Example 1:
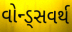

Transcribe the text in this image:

વોન્ડ્સવર્થ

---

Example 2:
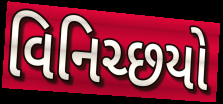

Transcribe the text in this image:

વિનિચ્છયો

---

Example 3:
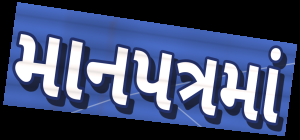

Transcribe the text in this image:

માનપત્રમાં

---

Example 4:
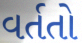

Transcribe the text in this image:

વર્તતો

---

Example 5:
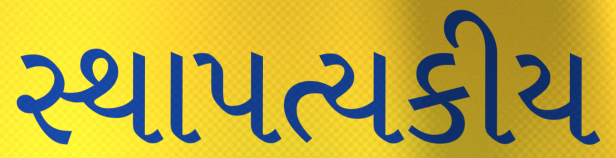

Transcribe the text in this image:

સ્થાપત્યકીય